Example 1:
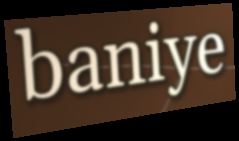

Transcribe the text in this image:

baniye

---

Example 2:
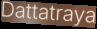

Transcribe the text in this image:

Dattatraya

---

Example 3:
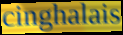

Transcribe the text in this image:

cinghalais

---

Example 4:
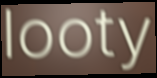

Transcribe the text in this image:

looty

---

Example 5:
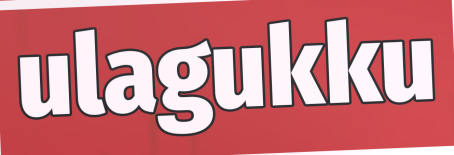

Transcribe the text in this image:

ulagukku